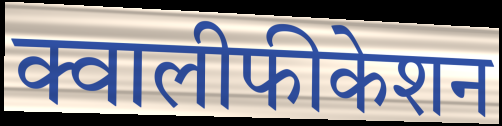
क्वालीफीकेशन